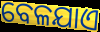
ବେଳଯାଏ